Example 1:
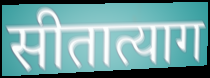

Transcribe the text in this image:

सीतात्याग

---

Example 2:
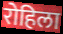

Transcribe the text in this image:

रोहिला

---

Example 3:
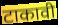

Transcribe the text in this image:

टाकावी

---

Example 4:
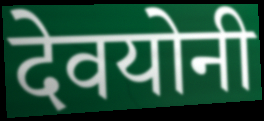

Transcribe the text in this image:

देवयोनी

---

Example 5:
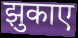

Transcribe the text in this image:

झुकाए